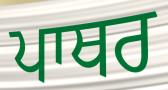
ਪਾਥਰ